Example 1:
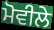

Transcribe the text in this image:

ਮੋਵੀਲੇ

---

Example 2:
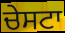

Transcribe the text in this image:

ਚੇਸਟਾ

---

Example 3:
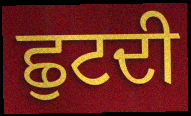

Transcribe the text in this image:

ਛੁਟਦੀ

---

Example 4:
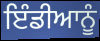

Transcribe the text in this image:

ਇੰਡੀਆਨੂੰ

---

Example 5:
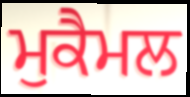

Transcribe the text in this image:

ਮੁਕੈਮਲ